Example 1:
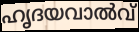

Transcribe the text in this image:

ഹൃദയവാൽവ്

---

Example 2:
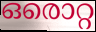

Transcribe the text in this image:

ഒരൊറ്റ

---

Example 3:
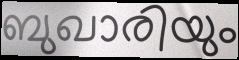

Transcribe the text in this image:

ബുഖാരിയും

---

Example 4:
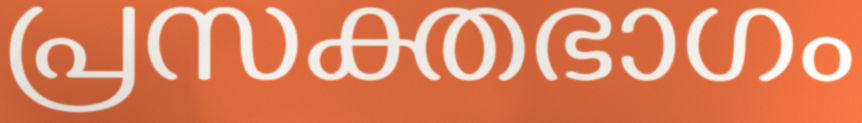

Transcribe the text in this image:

പ്രസക്തഭാഗം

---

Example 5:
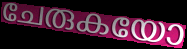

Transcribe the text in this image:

ചേരുകയോ